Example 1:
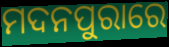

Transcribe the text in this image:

ମଦନପୁରାରେ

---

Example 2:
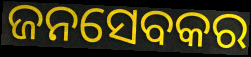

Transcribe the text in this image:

ଜନସେବକର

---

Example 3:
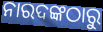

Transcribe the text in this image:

ନାରଦଙ୍କଠାରୁ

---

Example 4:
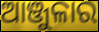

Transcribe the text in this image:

ଆଞ୍ଜୁଳାର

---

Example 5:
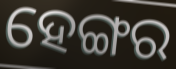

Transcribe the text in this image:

ହେଙ୍ଗର